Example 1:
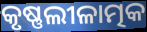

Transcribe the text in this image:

କୃଷ୍ଣଲୀଳାତ୍ମକ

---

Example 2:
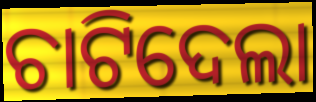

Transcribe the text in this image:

ଚାଟିଦେଲା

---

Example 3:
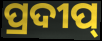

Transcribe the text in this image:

ପ୍ରଦୀପ୍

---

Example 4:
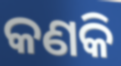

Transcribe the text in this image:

କଣକି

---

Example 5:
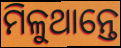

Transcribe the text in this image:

ମିଳୁଥାନ୍ତେ